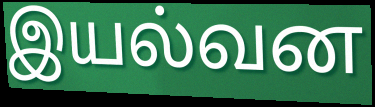
இயல்வன